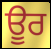
ਊਰ